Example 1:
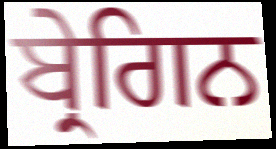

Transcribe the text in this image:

ਬ੍ਰੇਗਿਨ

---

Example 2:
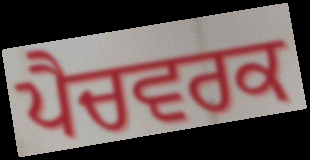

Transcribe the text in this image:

ਪੈਚਵਰਕ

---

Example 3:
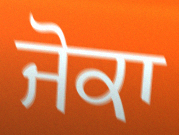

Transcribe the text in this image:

ਜੋਕਾ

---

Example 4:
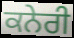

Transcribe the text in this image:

ਕਨੇਰੀ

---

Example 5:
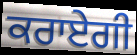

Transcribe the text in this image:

ਕਰਾਏਗੀ